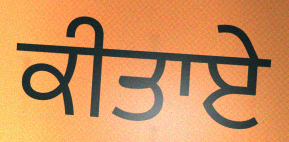
ਕੀਤਾਏ